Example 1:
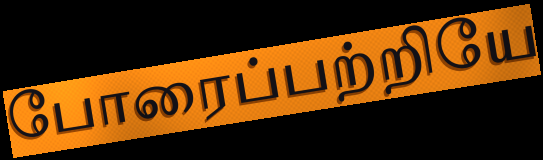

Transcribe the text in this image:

போரைப்பற்றியே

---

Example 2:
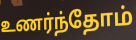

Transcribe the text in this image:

உணர்ந்தோம்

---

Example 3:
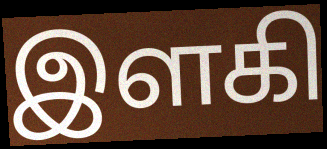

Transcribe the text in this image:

இளகி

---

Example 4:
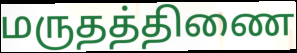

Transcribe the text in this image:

மருதத்திணை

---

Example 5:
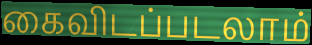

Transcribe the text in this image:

கைவிடப்படலாம்